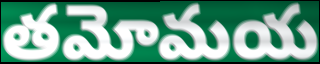
తమోమయ